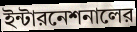
ইন্টারনেশনালের